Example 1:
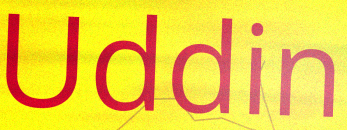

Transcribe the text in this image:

Uddin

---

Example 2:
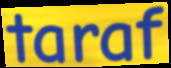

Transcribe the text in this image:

taraf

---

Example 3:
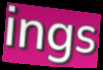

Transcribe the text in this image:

ings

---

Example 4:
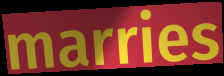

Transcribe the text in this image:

marries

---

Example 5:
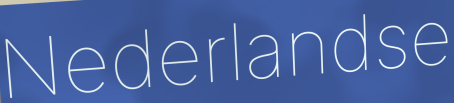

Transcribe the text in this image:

Nederlandse